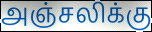
அஞ்சலிக்கு